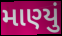
માણ્યું